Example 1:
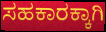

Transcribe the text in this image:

ಸಹಕಾರಕ್ಕಾಗಿ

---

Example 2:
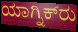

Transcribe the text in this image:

ಯಾಗ್ನಿಕ್‍ರು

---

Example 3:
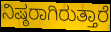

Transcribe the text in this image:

ನಿಷ್ಠರಾಗಿರುತ್ತಾರೆ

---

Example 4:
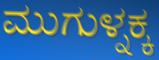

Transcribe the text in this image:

ಮುಗುಳ್ನಕ್ಕ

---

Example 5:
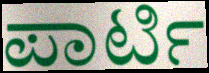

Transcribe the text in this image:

ಪಾರ್ಟಿ